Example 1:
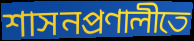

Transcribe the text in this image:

শাসনপ্রণালীতে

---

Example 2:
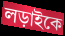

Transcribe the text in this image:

লড়াইকে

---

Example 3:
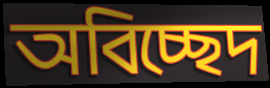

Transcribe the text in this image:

অবিচ্ছেদ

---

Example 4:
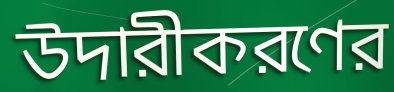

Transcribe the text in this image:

উদারীকরণের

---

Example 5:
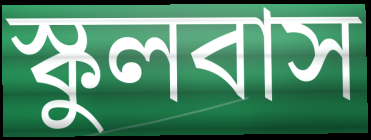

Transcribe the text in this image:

স্কুলবাস